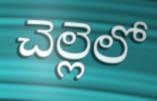
చెల్లెలో